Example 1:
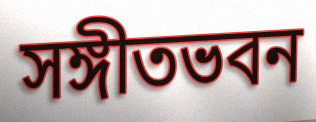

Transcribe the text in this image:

সঙ্গীতভবন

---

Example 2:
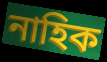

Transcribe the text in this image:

নাহিক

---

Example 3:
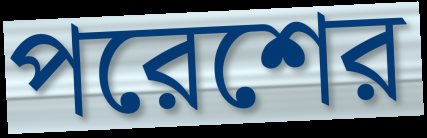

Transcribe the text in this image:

পরেশের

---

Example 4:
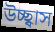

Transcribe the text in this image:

উচ্ছ্বাস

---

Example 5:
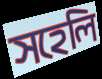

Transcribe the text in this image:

সহেলি